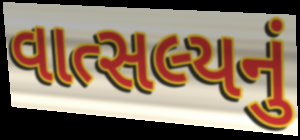
વાત્સલ્યનું